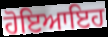
ਹੋਇਆਇਹ